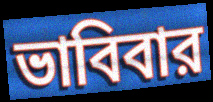
ভাবিবার